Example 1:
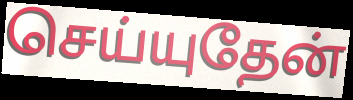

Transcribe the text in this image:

செய்யுதேன்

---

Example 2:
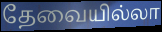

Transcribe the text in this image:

தேவையில்லா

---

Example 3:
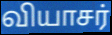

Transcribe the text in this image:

வியாசர்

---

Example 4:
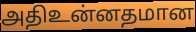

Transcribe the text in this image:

அதிஉன்னதமான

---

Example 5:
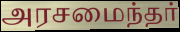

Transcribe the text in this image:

அரசமைந்தர்